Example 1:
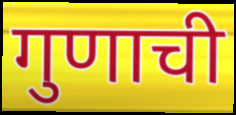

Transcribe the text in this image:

गुणाची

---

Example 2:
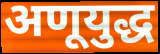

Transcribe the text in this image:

अणूयुद्ध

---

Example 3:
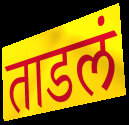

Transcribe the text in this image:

ताडलं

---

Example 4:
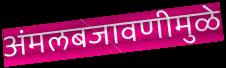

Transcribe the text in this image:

अंमलबजावणीमुळे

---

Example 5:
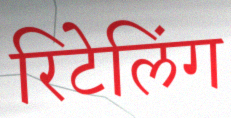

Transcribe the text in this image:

रिटेलिंग